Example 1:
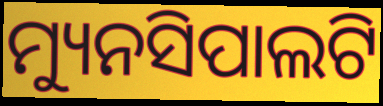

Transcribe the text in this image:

ମ୍ୟୁନସିପାଲଟି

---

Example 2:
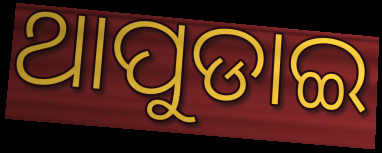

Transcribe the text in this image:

ଥାପୁଡାଇ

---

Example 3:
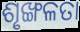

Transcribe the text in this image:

ଶୃଙ୍ଖଳତା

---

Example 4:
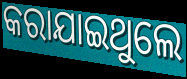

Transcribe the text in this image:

କରାଯାଇଥୁଲେ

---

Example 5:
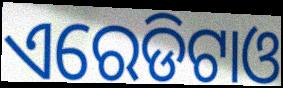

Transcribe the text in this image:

ଏରେଡିଟାଓ